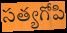
సత్యగోపి